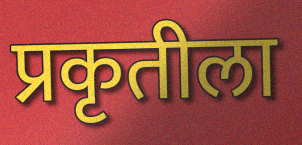
प्रकृतीला